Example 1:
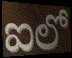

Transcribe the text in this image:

ఐలో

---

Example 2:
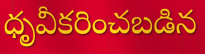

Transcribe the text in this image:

ధృవీకరించబడిన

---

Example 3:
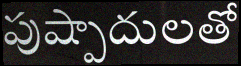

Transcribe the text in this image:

పుష్పాదులతో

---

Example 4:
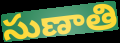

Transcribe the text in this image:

సుణాతి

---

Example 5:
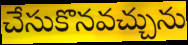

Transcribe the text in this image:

చేసుకొనవచ్చును